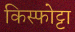
किस्फोट्टा